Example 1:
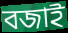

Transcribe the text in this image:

বজাই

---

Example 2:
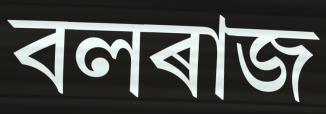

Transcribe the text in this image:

বলৰাজ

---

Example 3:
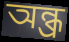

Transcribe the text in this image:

অন্ধ্ৰ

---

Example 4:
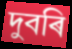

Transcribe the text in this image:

দুবৰি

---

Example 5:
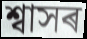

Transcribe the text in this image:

শ্বাসৰ